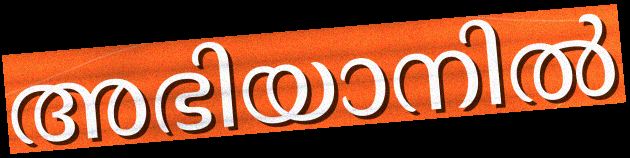
അഭിയാനിൽ